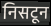
निसटून